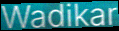
Wadikar